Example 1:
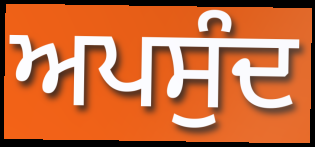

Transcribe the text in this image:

ਅਪਸੁੰਦ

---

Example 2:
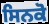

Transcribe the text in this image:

ਸਿਨਕੋ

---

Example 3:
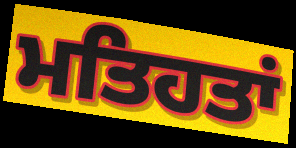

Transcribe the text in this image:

ਮਤਿਹਤਾਂ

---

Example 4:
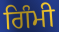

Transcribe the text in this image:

ਗਿੰਮੀ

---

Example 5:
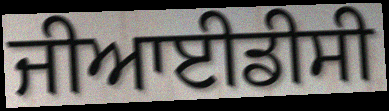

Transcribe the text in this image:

ਜੀਆਈਡੀਸੀ